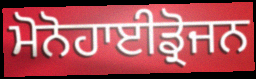
ਮੋਨੋਹਾਈਡ੍ਰੋਜਨ